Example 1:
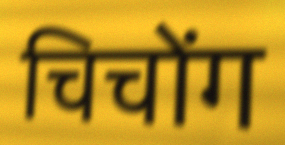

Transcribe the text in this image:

चिचोंग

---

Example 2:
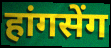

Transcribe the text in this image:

हांगसेंग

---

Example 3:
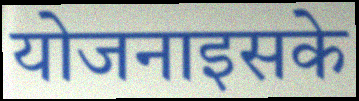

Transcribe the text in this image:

योजनाइसके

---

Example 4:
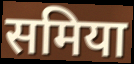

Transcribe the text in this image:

समिया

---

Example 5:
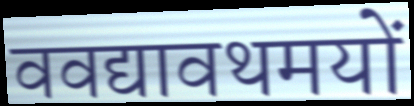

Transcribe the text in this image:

ववद्यावथमयों